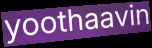
yoothaavin